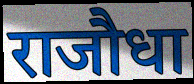
राजौधा